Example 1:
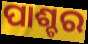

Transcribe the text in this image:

ପାଶ୍ଚର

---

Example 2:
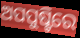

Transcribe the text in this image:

ଅପପୁଷ୍ଟିରେ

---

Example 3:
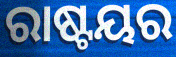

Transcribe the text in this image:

ରାଷ୍ଟୟର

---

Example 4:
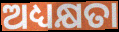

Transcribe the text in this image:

ଅଧ୍ୟକ୍ଷତା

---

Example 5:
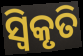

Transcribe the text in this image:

ସ୍ଵିକୃତି